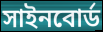
সাইনবোর্ড